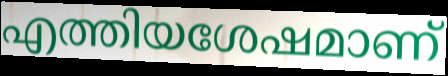
എത്തിയശേഷമാണ്